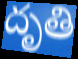
దృతి